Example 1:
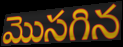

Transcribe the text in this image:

మొసగిన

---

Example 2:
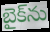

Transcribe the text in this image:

బైక్‌ను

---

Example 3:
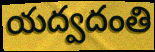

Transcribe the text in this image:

యద్వదంతి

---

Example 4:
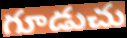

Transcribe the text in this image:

గూడుచు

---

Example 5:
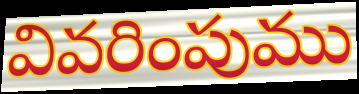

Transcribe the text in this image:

వివరింపుము